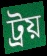
ট্ৰয়